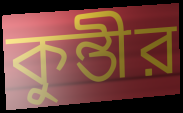
কুন্তীর